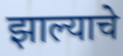
झाल्याचे